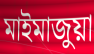
মাইমাজুয়া